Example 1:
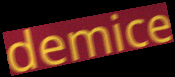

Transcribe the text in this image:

demice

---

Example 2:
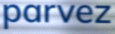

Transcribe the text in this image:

parvez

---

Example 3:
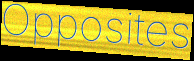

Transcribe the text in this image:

Opposites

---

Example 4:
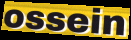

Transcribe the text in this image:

ossein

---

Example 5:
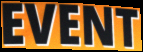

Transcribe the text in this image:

EVENT